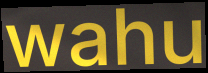
wahu